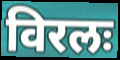
विरलः